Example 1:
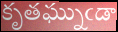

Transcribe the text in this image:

కృతఘ్నుఁడా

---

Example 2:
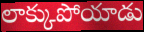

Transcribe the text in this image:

లాక్కుపోయాడు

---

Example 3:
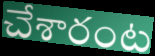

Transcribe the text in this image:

చేశారంట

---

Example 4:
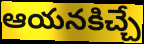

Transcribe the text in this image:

ఆయనకిచ్చే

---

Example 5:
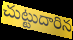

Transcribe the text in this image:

చుట్టుదారిన